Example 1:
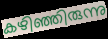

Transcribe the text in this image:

കഴിഞ്ഞിരുന്നു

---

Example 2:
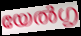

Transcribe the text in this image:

യേൽഗൃ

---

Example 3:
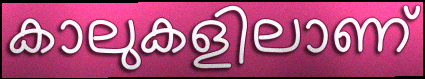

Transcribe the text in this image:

കാലുകളിലാണ്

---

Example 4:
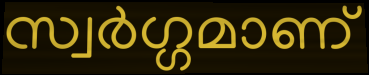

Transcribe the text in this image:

സ്വർഗ്ഗമാണ്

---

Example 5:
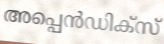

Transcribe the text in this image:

അപ്പെൻഡിക്സ്